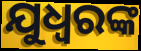
ଯୁଧ୍ଵରଙ୍କ